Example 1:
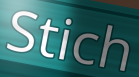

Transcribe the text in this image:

Stich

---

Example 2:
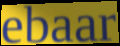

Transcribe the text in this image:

ebaar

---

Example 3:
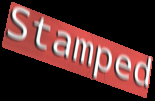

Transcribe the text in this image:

Stamped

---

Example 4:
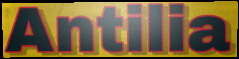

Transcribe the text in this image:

Antilia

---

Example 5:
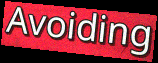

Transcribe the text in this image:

Avoiding